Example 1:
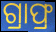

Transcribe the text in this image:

ଗ୍ରାଫ୍ର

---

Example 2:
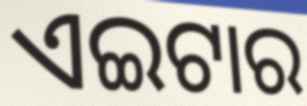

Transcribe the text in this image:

ଏଇଟାର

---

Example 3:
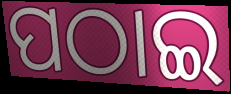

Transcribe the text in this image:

ପଠାଇ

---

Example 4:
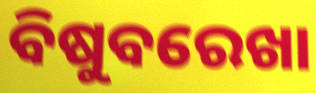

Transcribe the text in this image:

ବିଷୁବରେଖା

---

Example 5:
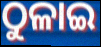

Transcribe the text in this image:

ଠୁଳାଇ